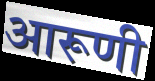
आरूणी